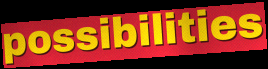
possibilities